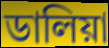
ডালিয়া